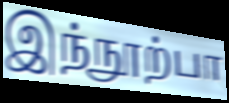
இந்நூற்பா